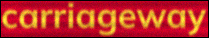
carriageway